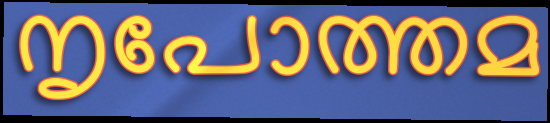
നൃപോത്തമ